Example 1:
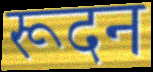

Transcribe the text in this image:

रूदन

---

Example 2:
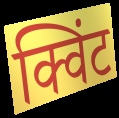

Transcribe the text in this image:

क्विंट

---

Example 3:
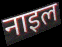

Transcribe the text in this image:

नाइल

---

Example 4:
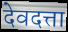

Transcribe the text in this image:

देवदत्ता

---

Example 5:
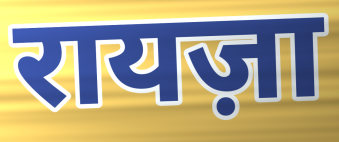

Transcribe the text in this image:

रायज़ा